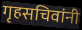
गृहसचिवांनी